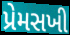
પ્રેમસખી